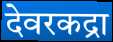
देवरकद्रा